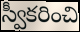
స్వీకరించి